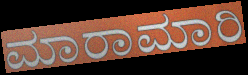
ಮಾರಾಮಾರಿ